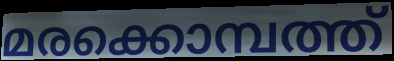
മരക്കൊമ്പത്ത്